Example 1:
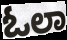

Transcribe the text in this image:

ಓಲಾ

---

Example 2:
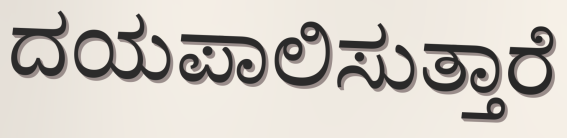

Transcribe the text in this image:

ದಯಪಾಲಿಸುತ್ತಾರೆ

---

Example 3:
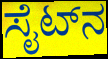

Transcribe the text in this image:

ಸೈಟ್‌ನ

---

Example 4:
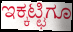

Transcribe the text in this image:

ಇಕ್ಕಟ್ಟಿಗೂ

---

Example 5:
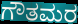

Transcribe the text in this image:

ಗೌತಮರ